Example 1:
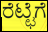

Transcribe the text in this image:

ರೆಟ್ಟೆಗೆ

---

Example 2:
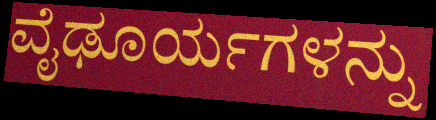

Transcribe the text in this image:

ವೈಢೂರ್ಯಗಳನ್ನು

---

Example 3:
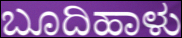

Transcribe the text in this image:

ಬೂದಿಹಾಳು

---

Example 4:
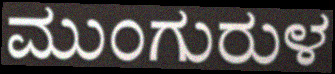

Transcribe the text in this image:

ಮುಂಗುರುಳ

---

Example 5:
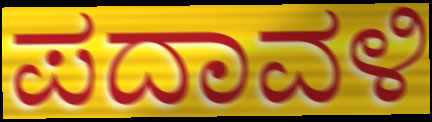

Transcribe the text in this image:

ಪದಾವಳಿ